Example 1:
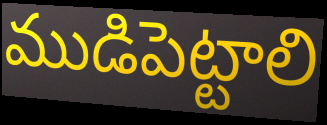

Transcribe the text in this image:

ముడిపెట్టాలి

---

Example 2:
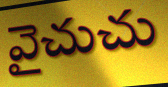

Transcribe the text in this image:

వైచుచు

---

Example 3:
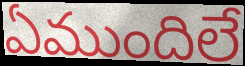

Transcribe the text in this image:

ఏముందిలే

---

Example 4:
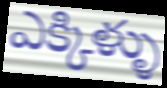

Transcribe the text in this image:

ఎక్కిళ్ళు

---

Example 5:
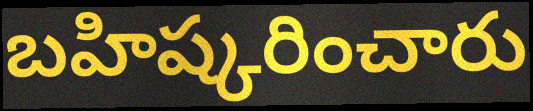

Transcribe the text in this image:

బహిష్కరించారు